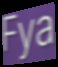
Fya